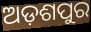
ଅଡ଼ଶପୁର